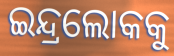
ଇନ୍ଦ୍ରଲୋକକୁ